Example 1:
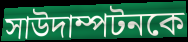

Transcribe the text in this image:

সাউদাম্পটনকে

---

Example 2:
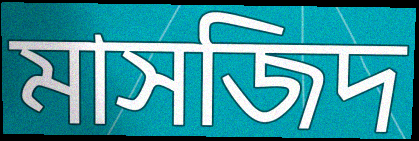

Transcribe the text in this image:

মাসজিদ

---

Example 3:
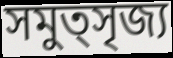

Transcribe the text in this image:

সমুত্সৃজ্য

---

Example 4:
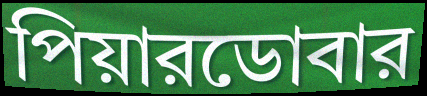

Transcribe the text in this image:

পিয়ারডোবার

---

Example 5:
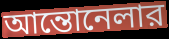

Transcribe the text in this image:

আন্তোনেলার